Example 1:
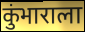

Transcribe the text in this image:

कुंभाराला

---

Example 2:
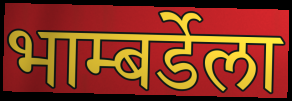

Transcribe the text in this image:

भाम्बर्डेला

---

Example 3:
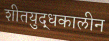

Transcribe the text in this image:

शीतयुद्धकालीन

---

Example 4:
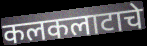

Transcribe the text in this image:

कलकलाटाचे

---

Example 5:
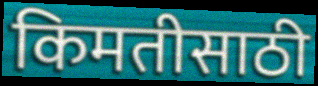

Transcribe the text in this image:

किमतीसाठी